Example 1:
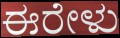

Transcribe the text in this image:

ಈರೇಳು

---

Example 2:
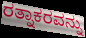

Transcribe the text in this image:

ರತ್ನಾಕರವನ್ನು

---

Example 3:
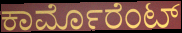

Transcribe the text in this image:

ಕಾರ್ಮೊರೆಂಟ್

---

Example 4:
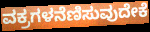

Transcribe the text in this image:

ವಕ್ರಗಳನೆಣಿಸುವುದೇಕೆ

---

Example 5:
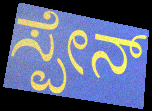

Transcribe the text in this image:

ಸ್ಪೇನ್